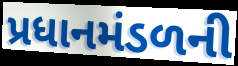
પ્રધાનમંડળની